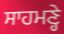
ਸਾਹਮਣ੍ਹੇ